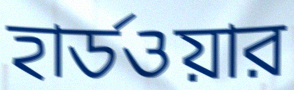
হার্ডওয়ার